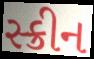
સ્ક્રીન